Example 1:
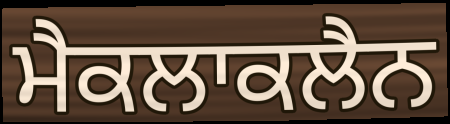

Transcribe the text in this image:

ਮੈਕਲਾਕਲੈਨ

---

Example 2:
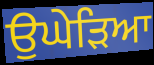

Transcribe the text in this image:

ਉਘੇੜਿਆ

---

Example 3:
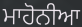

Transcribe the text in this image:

ਮਾਹੋਨੀਆ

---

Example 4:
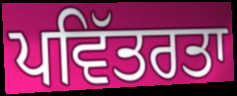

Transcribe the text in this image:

ਪਵਿੱਤਰਤਾ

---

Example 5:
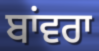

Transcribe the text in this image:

ਬਾਂਵਰਾ